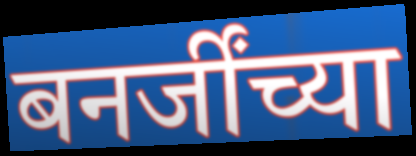
बनर्जींच्या